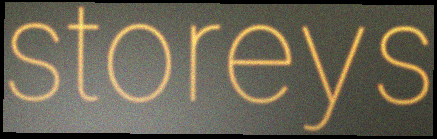
storeys